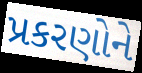
પ્રકરણોને